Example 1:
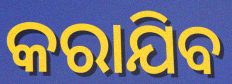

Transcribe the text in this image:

କରାଯିବ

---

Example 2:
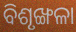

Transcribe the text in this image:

ବିଶୃଙ୍ଖଳା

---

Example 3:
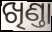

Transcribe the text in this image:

ଖିଣ୍ତା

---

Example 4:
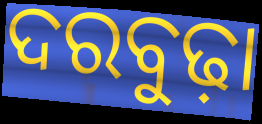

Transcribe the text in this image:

ଦରବୁଢ଼ା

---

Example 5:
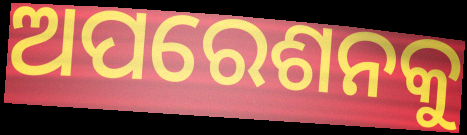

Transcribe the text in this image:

ଅପରେଶନକୁ